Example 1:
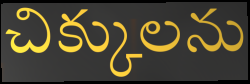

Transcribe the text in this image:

చిక్కులను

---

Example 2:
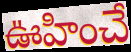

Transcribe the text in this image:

ఊహించే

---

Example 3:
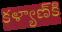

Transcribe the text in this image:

కళ్యాణ్‍కి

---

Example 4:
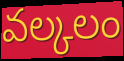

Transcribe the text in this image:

వల్కలం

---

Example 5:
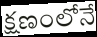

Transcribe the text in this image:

క్షణంలోనే